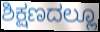
ಶಿಕ್ಷಣದಲ್ಲೂ